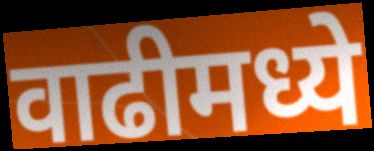
वाढीमध्ये